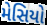
મેસિયો